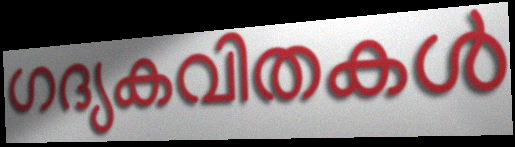
ഗദ്യകവിതകൾ